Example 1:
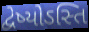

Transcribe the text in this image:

દ્વેષ્યોઽસ્તિ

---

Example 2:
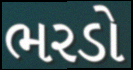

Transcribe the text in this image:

ભરડો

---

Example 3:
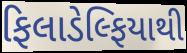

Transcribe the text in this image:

ફિલાડેલ્ફિયાથી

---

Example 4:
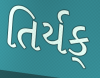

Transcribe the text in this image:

તિર્યક્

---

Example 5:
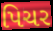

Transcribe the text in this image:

પિચર